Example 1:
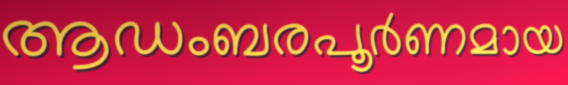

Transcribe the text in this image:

ആഡംബരപൂർണമായ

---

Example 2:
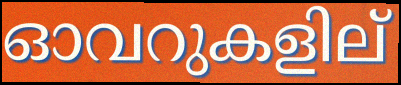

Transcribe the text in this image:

ഓവറുകളില്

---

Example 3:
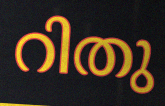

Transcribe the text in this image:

റിതു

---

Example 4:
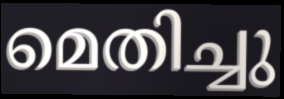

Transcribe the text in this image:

മെതിച്ചു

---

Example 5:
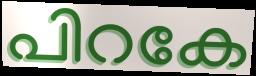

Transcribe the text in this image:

പിറകേ